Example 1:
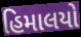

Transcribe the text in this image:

હિમાલયો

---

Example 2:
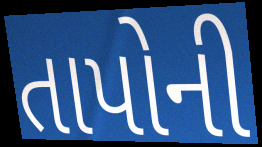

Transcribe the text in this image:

તાપોની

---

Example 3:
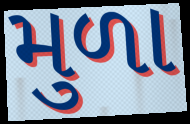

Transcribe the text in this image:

મુળા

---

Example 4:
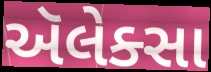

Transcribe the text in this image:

ઍલેક્સા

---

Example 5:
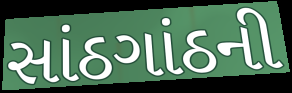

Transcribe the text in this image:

સાંઠગાંઠની